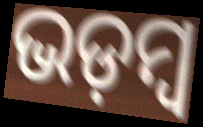
ଭଡ଼ମ୍ବ